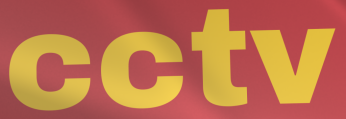
cctv